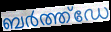
ബർത്ത്ഡേ